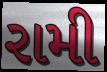
રામી